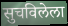
सुचविलेला